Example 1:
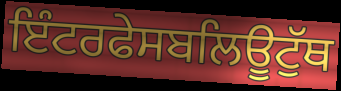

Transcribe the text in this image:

ਇੰਟਰਫੇਸਬਲਿਊਟੁੱਥ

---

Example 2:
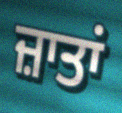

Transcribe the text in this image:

ਜ਼ਾਤਾਂ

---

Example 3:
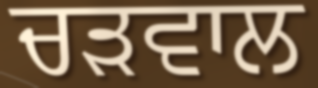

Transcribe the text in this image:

ਚੜਵਾਲ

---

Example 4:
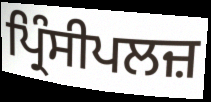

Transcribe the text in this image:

ਪ੍ਰਿੰਸੀਪਲਜ਼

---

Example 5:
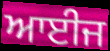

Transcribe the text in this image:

ਆਈਜ